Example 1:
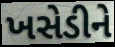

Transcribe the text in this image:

ખસેડીને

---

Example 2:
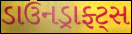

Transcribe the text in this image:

ડાઉનડ્રાફ્ટ્સ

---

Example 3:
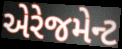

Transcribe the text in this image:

એરેજમેન્ટ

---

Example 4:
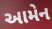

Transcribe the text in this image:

આમેન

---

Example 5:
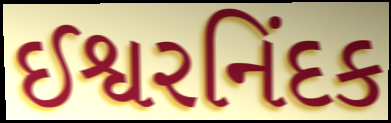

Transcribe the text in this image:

ઈશ્વરનિંદક